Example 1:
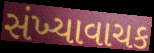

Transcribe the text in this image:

સંખ્યાવાચક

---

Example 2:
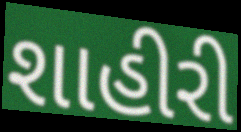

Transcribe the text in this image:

શાહીરી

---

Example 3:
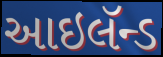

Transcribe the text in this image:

આઇલૅન્ડ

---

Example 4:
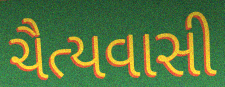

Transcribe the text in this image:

ચૈત્યવાસી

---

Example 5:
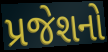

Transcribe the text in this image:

પ્રજેશનો